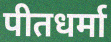
पीतधर्मा